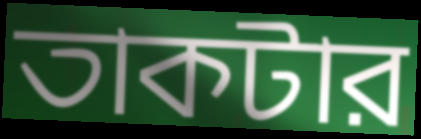
তাকটার